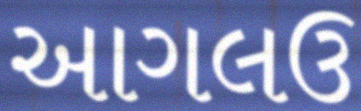
આગલઉ